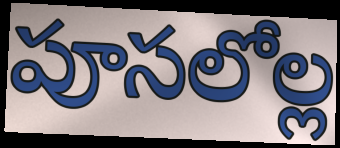
పూసలోల్ల